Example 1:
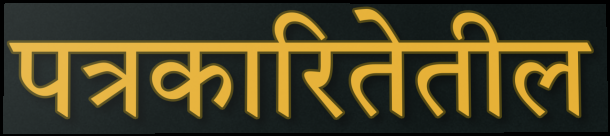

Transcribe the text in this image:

पत्रकारितेतील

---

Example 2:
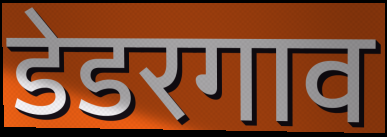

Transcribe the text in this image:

डेडरगाव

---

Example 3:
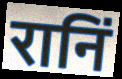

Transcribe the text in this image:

रानिं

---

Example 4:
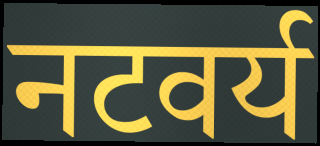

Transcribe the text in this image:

नटवर्य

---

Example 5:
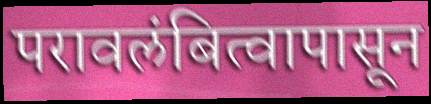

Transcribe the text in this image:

परावलंबित्वापासून